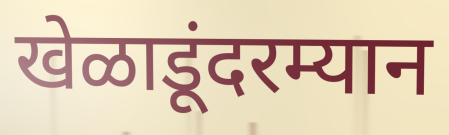
खेळाडूंदरम्यान